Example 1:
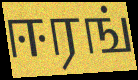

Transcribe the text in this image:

ஈரங்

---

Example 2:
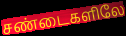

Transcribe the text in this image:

சண்டைகளிலே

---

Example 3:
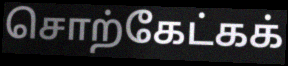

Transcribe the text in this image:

சொற்கேட்கக்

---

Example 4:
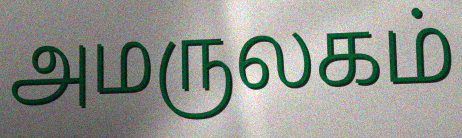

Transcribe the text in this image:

அமருலகம்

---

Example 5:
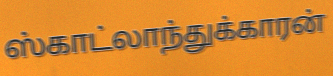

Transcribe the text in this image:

ஸ்காட்லாந்துக்காரன்